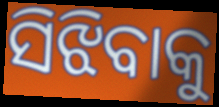
ସିଝିବାକୁ